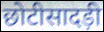
छोटीसादड़ी